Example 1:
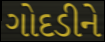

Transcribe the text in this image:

ગોદડીને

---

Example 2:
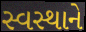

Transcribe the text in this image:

સ્વસ્થાને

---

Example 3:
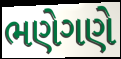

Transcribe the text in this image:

ભણેગણે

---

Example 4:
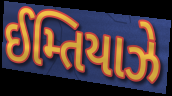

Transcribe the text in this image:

ઈમ્તિયાઝે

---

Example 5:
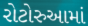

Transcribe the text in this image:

રોટોરુઆમાં